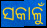
ସକାଳୁଁ